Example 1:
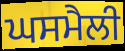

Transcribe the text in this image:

ਘਸਮੈਲੀ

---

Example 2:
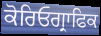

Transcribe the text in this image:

ਕੋਰਿਓਗ੍ਰਾਫਿਕ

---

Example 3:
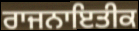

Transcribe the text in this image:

ਰਾਜਨਾਇਤੀਕ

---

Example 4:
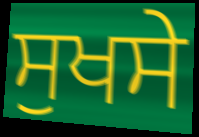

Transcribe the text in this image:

ਸੁਖਸੇ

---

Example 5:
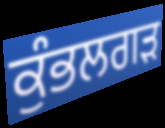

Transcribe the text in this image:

ਕੁੰਭਲਗੜ